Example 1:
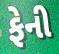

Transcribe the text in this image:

ફેની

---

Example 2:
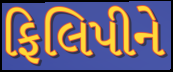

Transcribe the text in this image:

ફિલિપીને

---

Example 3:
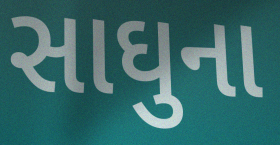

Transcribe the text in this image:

સાઘુના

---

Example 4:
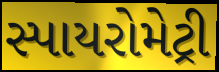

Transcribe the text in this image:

સ્પાયરોમેટ્રી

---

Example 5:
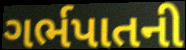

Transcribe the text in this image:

ગર્ભપાતની